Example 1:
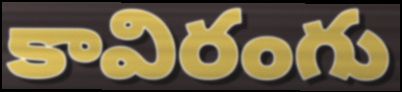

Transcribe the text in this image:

కావిరంగు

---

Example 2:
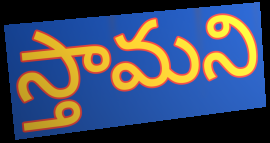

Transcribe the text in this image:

స్తామని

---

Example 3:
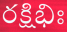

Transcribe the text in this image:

రక్షిభిః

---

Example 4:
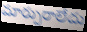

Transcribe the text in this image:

మార్పురాలేదు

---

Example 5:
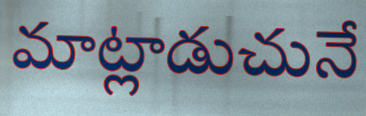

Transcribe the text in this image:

మాట్లాడుచునే